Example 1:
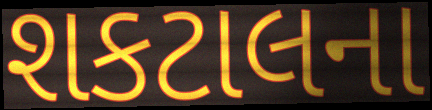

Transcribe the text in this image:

શકટાલના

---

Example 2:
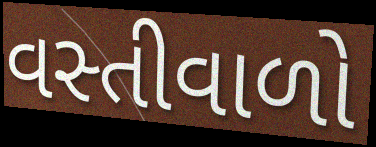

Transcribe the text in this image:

વસ્તીવાળો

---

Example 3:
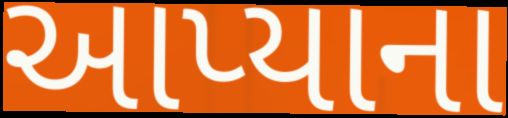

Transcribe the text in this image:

આપ્યાના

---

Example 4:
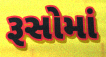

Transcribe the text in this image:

રૂસોમાં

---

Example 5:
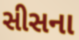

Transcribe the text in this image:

સીસના